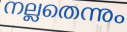
നല്ലതെന്നും